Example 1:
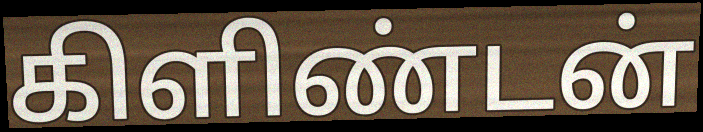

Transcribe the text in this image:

கிளிண்டன்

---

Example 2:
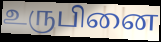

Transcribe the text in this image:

உருபினை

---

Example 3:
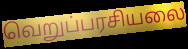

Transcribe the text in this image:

வெறுப்பரசியலை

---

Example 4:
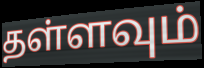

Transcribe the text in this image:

தள்ளவும்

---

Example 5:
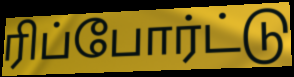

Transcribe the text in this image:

ரிப்போர்ட்டு